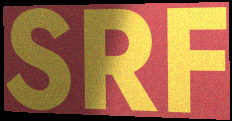
SRF